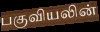
பகுவியலின்